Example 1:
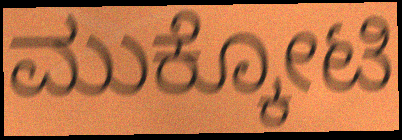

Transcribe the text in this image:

ಮುಕ್ಕೋಟಿ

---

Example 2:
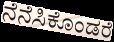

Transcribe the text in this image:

ನೆನೆಸಿಕೊಂಡರೆ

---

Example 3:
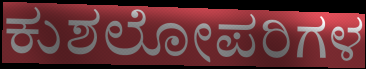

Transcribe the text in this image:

ಕುಶಲೋಪರಿಗಳ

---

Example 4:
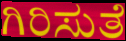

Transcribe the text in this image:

ಗಿರಿಸುತೆ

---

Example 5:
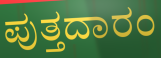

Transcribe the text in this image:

ಪುತ್ತದಾರಂ